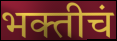
भक्तीचं